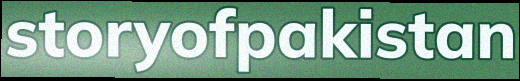
storyofpakistan